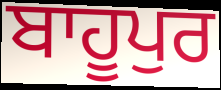
ਬਾਹੂਪੁਰ